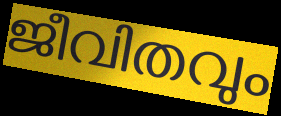
ജീവിതവും